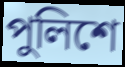
পুলিশে